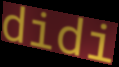
didi